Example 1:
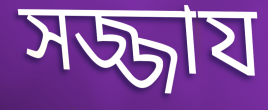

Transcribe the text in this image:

সজ্জায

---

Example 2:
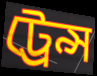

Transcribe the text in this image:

ট্রেন্স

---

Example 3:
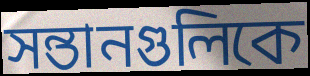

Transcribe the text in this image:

সন্তানগুলিকে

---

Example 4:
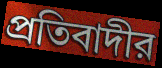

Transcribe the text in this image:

প্রতিবাদীর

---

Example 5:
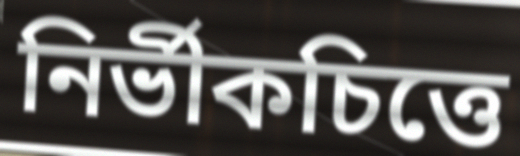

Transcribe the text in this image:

নির্ভীকচিত্তে